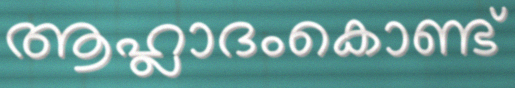
ആഹ്ലാദംകൊണ്ട്